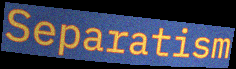
Separatism